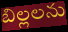
బిల్లలను